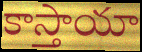
కాస్తాయా